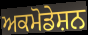
ਅਕਮੋਡੇਸ਼ਨ